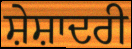
ਸ਼ੇਸ਼ਾਦਰੀ